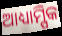
ଆଧ୍ୟାମ୍ପିକ